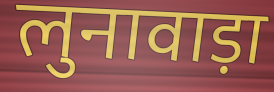
लुनावाड़ा